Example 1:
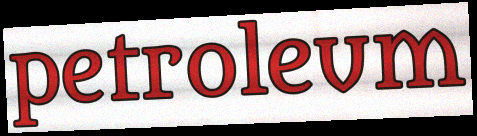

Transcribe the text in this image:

petroleum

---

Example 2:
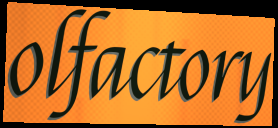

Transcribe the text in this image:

olfactory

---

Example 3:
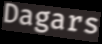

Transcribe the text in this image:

Dagars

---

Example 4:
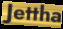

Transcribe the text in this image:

Jettha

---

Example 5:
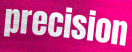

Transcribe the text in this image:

precision